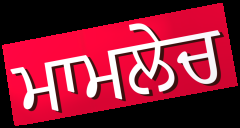
ਮਾਮਲੇਚ